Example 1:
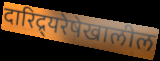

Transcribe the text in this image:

दारिद्र्यरेषेखालील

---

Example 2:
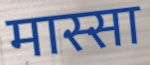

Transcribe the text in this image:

मास्सा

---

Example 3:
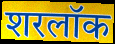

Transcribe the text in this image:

शरलॉक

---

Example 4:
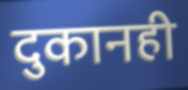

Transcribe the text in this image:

दुकानही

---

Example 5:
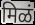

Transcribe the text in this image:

मिळं